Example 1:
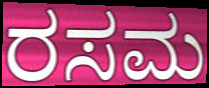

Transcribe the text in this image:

ರಸಮ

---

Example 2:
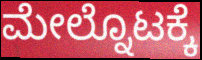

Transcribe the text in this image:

ಮೇಲ್ನೊಟಕ್ಕೆ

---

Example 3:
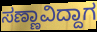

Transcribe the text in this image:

ಸಣ್ಣಾವಿದ್ದಾಗ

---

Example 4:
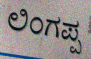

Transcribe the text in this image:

ಲಿಂಗಪ್ಪ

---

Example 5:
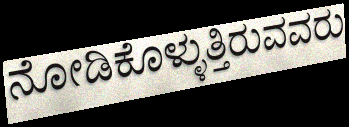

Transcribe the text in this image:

ನೋಡಿಕೊಳ್ಳುತ್ತಿರುವವರು